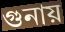
গুনায়